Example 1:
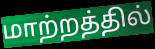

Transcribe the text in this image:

மாற்றத்தில்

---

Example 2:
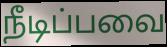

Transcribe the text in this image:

நீடிப்பவை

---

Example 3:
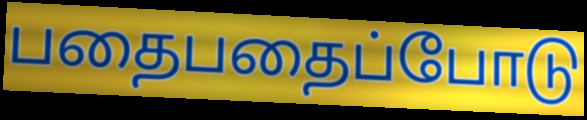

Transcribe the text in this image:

பதைபதைப்போடு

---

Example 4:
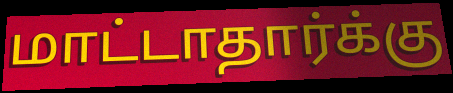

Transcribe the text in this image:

மாட்டாதார்க்கு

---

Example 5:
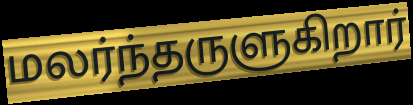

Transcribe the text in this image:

மலர்ந்தருளுகிறார்